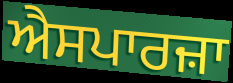
ਐਸਪਾਰਜ਼ਾ